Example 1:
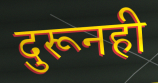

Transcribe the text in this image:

दुरूनही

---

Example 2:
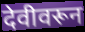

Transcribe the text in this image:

देवीवरून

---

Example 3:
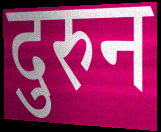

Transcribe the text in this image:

दुरुन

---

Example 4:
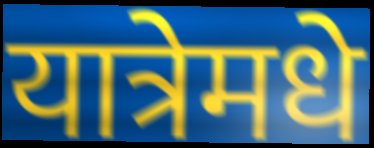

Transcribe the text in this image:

यात्रेमधे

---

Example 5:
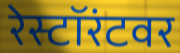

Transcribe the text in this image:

रेस्टॉरंटवर